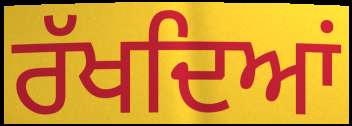
ਰੱਖਦਿਆਂ